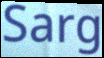
Sarg